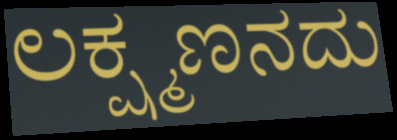
ಲಕ್ಷ್ಮಣನದು